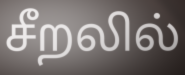
சீறலில்